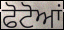
ਫੋਟੋਆਂ